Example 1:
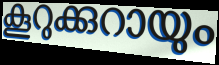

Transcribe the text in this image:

കൂറുക്കുറായും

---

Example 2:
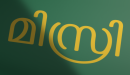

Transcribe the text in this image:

മിസ്രി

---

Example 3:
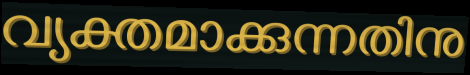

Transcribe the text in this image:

വ്യക്തമാക്കുന്നതിനു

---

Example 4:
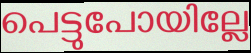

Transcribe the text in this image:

പെട്ടുപോയില്ലേ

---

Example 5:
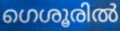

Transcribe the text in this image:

ഗെശൂരിൽ